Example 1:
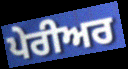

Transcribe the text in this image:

ਪੇਰੀਅਰ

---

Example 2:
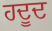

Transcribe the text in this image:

ਹਦੂਦ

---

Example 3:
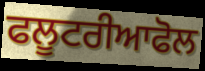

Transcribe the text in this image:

ਫਲੂਟਰੀਆਫੋਲ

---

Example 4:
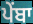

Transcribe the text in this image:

ਪੇਂਬਾ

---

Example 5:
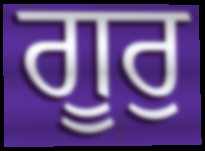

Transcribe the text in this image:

ਗੂਰੁ